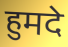
हुमदे